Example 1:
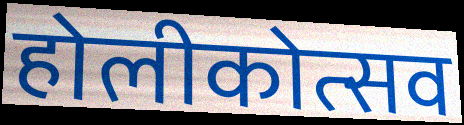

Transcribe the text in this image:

होलीकोत्सव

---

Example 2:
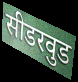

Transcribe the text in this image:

सीडरवुड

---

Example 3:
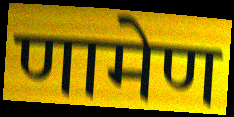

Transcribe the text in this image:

णामेण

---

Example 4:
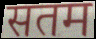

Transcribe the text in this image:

सतम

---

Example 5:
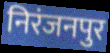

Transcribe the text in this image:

निरंजनपुर